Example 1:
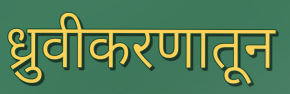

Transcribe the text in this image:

ध्रुवीकरणातून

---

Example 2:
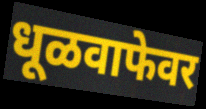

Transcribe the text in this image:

धूळवाफेवर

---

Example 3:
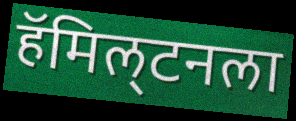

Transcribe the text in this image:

हॅमिल्टनला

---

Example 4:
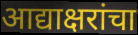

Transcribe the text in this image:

आद्याक्षरांचा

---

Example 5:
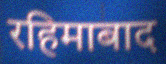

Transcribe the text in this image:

रहिमाबाद